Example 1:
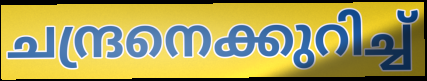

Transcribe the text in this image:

ചന്ദ്രനെക്കുറിച്ച്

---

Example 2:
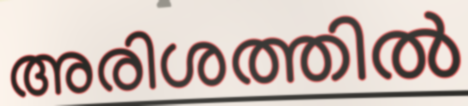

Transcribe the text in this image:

അരിശത്തിൽ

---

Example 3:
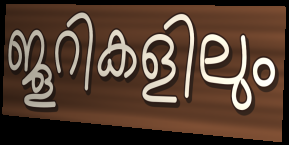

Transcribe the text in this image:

ജൂറികളിലും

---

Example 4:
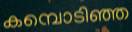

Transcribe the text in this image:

കമ്പൊടിഞ്ഞ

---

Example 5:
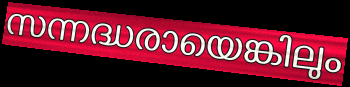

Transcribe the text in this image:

സന്നദ്ധരായെങ്കിലും